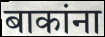
बाकांना